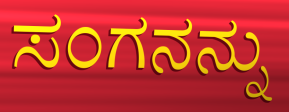
ಸಂಗನನ್ನು